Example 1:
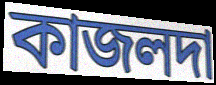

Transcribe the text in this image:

কাজলদা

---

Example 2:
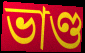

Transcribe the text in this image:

ভাণ্ড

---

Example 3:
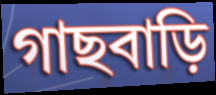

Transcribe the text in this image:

গাছবাড়ি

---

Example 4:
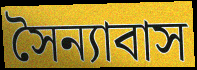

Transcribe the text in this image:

সৈন্যাবাস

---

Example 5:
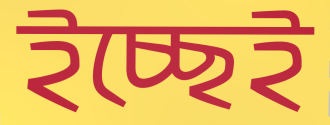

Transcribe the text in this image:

ইচ্ছেই